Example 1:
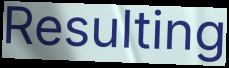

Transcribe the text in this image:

Resulting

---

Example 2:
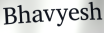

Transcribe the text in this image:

Bhavyesh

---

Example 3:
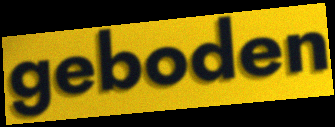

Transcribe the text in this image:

geboden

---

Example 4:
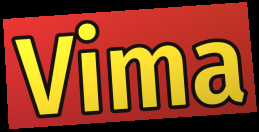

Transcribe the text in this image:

Vima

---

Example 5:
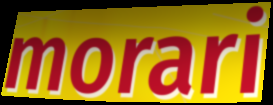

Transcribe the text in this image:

morari